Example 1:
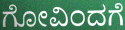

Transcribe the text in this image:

ಗೋವಿಂದಗೆ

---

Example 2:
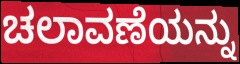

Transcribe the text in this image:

ಚಲಾವಣೆಯನ್ನು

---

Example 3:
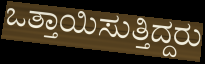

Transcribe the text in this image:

ಒತ್ತಾಯಿಸುತ್ತಿದ್ದರು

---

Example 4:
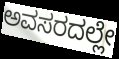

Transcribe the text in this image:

ಅವಸರದಲ್ಲೇ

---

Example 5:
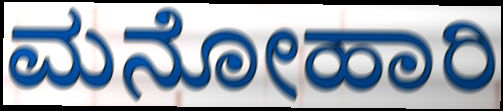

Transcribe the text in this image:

ಮನೋಹಾರಿ